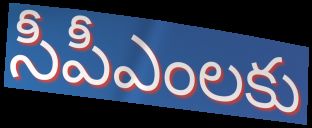
సీపీఎంలకు